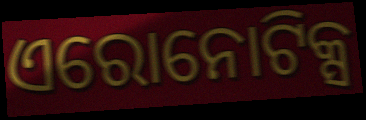
ଏରୋନୋଟିକ୍ସ